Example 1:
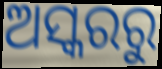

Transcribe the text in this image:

ଅସ୍କରରୁ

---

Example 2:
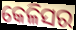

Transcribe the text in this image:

କେଳିସର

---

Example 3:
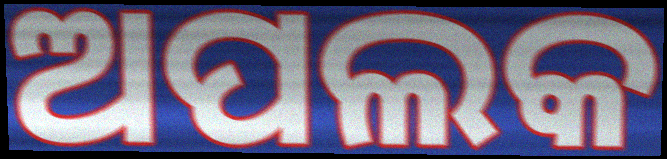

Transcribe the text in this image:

ଅପଲକ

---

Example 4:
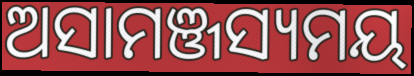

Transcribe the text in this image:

ଅସାମଞ୍ଜସ୍ୟମୟ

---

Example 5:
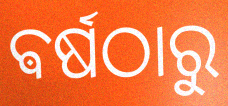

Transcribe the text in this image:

ଵର୍ଷଠାରୁ